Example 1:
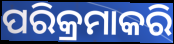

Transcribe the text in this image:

ପରିକ୍ରମାକରି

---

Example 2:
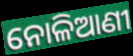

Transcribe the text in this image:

ନୋଳିଆଣୀ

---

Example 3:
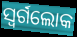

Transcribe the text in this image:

ସ୍ୱର୍ଗଲୋକ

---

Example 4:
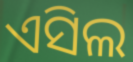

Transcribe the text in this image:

ଏସିଲ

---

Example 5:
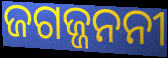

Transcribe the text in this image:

ଜଗଜ୍ଜନନୀ